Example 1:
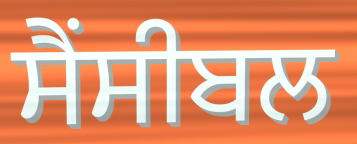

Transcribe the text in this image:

ਸੈਂਸੀਬਲ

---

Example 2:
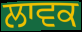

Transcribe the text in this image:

ਲਾਵਕ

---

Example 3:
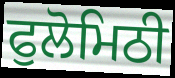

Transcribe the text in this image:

ਫੁਲੋਮਿਠੀ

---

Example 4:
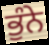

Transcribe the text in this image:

ਭੁੰਨੇ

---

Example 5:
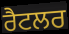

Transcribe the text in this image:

ਰੈਟਲਰ